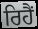
ਰਿਹੈੰ